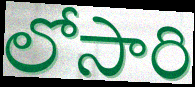
లోసారి